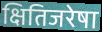
क्षितिजरेषा